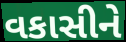
વકાસીને